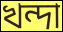
খন্দা